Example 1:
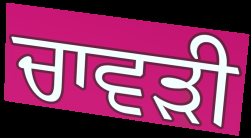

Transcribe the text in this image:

ਚਾਵੜੀ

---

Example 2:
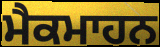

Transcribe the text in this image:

ਮੈਕਮਾਹਨ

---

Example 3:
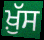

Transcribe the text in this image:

ਖ਼ੁੱਸ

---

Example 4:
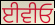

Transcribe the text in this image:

ਈਵੀਓ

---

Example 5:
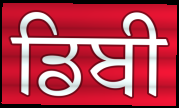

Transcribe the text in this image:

ਡਿਬੀ